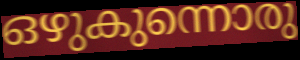
ഒഴുകുന്നൊരു